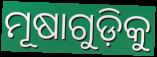
ମୂଷାଗୁଡ଼ିକୁ